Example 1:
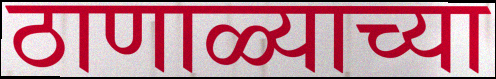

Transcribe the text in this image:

ठाणाळ्याच्या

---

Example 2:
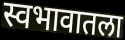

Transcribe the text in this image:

स्वभावातला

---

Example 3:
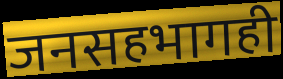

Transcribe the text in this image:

जनसहभागही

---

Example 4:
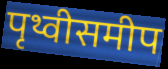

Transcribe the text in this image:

पृथ्वीसमीप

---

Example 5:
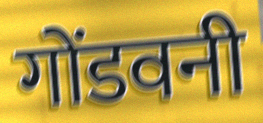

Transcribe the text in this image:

गोंडवनी